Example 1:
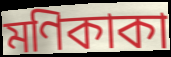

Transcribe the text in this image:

মণিকাকা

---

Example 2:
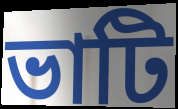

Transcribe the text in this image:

ভাটি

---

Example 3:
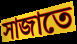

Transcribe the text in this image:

সাজাতে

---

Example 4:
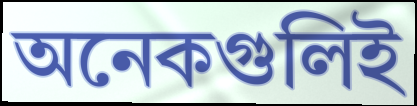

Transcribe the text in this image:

অনেকগুলিই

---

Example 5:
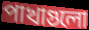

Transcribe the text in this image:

পাখাগুলো